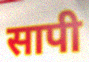
सापी